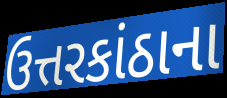
ઉત્તરકાંઠાના